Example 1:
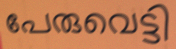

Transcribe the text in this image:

പേരുവെട്ടി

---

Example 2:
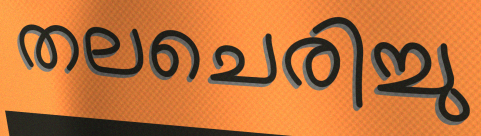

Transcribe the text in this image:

തലചെരിച്ചു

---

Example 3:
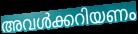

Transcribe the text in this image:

അവൾക്കറിയണം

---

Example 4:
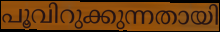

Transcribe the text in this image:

പൂവിറുക്കുന്നതായി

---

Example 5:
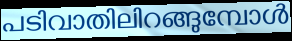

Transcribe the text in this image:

പടിവാതിലിറങ്ങുമ്പോൾ